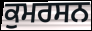
ਕੁਮਰਸਨ